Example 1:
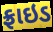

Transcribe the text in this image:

ફ્રાઇડ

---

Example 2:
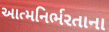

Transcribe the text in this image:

આત્મનિર્ભરતાના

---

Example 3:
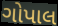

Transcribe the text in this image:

ગોપાલ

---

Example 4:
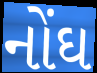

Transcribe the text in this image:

નોંઘ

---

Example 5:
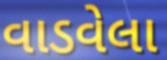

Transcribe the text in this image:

વાડવેલા